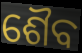
ଶୈବ